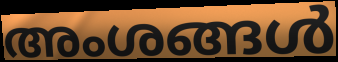
അംശങ്ങൾ